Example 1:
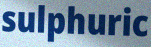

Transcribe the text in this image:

sulphuric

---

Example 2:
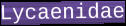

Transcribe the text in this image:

Lycaenidae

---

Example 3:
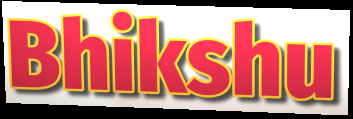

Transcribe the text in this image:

Bhikshu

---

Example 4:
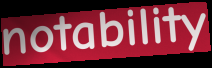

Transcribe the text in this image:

notability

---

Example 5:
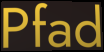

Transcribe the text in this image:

Pfad